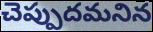
చెప్పుదమనిన